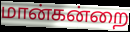
மான்கன்றை